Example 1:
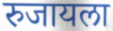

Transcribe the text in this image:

रुजायला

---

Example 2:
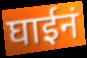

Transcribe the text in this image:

घाईनं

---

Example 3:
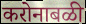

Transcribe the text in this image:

करोनाबळी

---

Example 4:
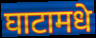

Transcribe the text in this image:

घाटामधे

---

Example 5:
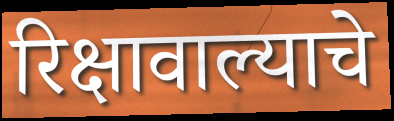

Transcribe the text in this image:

रिक्षावाल्याचे